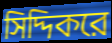
সিদ্দিকরে